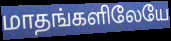
மாதங்களிலேயே